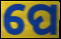
ପେ